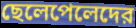
ছেলেপেলেদের